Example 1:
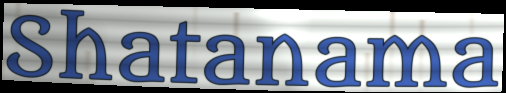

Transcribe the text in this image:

Shatanama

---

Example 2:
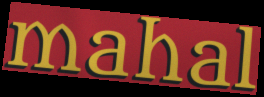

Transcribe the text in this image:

mahal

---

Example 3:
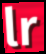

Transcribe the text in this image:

lr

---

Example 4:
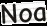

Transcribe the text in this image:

Noa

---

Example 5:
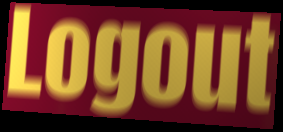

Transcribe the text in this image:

Logout